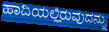
ಹಾದಿಯಲ್ಲಿರುವುದನ್ನು